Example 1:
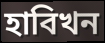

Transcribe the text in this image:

হাবিখন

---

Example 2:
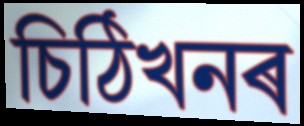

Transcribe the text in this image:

চিঠিখনৰ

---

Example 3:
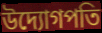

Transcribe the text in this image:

উদ্যোগপতি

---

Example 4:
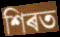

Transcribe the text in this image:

শিৰত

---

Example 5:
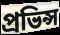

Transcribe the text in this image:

প্ৰভিন্স